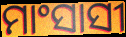
ମାଂସାସୀ